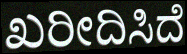
ಖರೀದಿಸಿದೆ